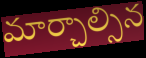
మార్చాల్సిన